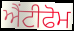
ਐਂਟੀਫੋਮ